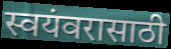
स्वयंवरासाठी